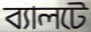
ব্যালটে